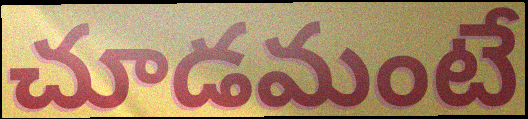
చూడమంటే